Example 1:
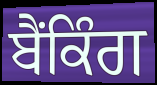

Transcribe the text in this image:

ਬੈਂਕਿੰਗ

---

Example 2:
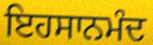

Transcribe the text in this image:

ਇਹਸਾਨਮੰਦ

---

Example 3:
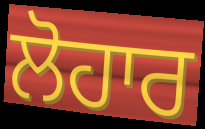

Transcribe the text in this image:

ਲੋਹਾਰ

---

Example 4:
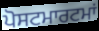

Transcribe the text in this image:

ਪੋਸਟਮਾਰਟਮਾਂ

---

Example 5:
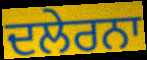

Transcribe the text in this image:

ਦਲੇਰਨਾ